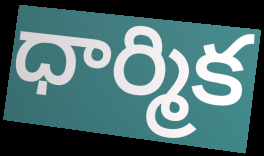
ధార్మిక